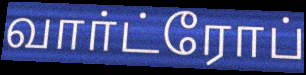
வார்ட்ரோப்